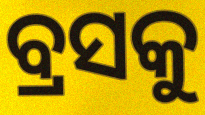
ବ୍ରସକୁ